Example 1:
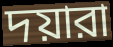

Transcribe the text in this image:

দয়ারা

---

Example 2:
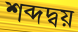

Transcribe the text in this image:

শব্দদ্বয়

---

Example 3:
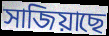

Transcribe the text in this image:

সাজিয়াছে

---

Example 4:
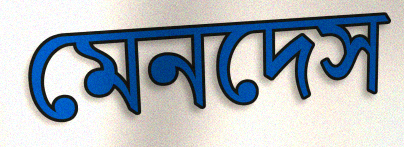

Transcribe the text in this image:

মেনদেস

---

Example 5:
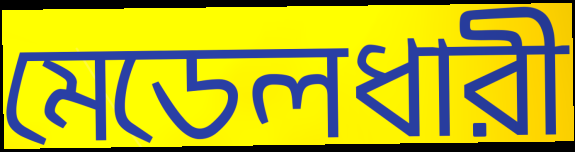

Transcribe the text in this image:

মেডেলধারী